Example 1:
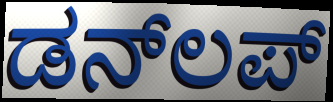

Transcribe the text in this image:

ಡನ್‌ಲಪ್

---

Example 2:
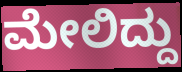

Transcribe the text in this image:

ಮೇಲಿದ್ದು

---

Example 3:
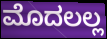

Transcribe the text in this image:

ಮೊದಲಲ್ಲ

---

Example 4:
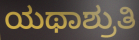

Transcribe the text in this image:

ಯಥಾಶ್ರುತಿ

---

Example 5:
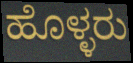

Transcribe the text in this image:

ಹೊಳ್ಳರು